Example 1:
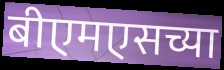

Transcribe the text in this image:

बीएमएसच्या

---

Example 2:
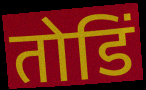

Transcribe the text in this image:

तोडिं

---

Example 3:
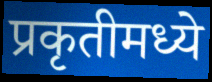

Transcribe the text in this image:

प्रकृतीमध्ये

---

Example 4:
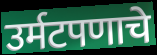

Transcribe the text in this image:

उर्मटपणाचे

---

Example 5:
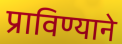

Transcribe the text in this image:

प्राविण्याने